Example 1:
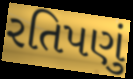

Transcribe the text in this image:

રતિપણું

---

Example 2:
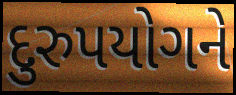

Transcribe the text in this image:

દુરુપયોગને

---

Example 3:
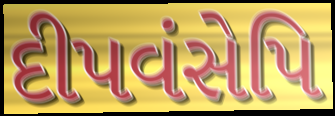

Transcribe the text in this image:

દીપવંસેપિ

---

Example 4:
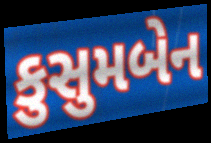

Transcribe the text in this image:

કુસુમબેન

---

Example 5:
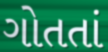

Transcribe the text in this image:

ગોતતાં